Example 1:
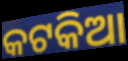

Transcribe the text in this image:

କଟକିଆ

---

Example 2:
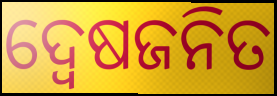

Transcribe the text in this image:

ଦ୍ଵେଷଜନିତ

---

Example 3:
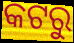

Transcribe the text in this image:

କଟରୁ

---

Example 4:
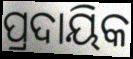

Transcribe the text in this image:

ପ୍ରଦାୟିକ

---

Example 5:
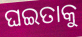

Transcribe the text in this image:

ଘଇତାକୁ